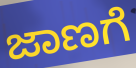
ಜಾಣಗೆ